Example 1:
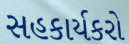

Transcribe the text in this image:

સહકાર્યકરો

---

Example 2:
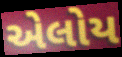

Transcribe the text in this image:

એલોય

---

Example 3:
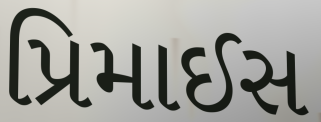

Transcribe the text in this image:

પ્રિમાઈસ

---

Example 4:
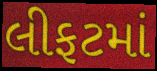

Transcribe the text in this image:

લીફટમાં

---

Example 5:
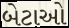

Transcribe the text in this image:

બેટાઓ